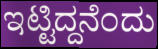
ಇಟ್ಟಿದ್ದನೆಂದು